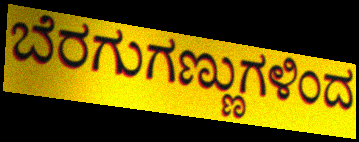
ಬೆರಗುಗಣ್ಣುಗಳಿಂದ